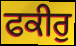
ਫਕੀਰੁ